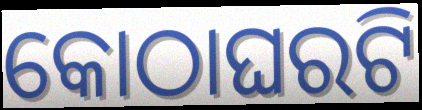
କୋଠାଘରଟି